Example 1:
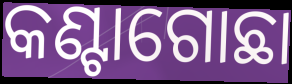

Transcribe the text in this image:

କଣ୍ଟାଗୋଛା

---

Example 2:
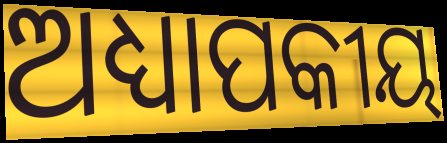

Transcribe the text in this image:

ଅଧ୍ୟାପକୀୟ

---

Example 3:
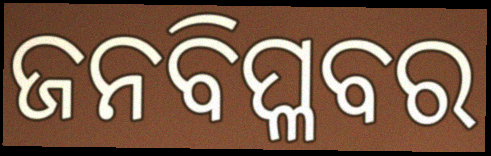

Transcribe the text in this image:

ଜନବିପ୍ଳବର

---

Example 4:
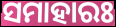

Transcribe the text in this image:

ସମାହାରଃ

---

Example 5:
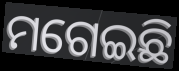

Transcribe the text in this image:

ମଗେଇଛି